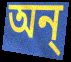
অন্